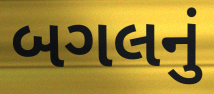
બગલનું